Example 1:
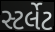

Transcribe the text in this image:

સ્ટર્લેટ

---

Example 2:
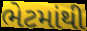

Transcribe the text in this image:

ભેટમાંથી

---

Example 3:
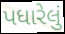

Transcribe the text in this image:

પધારેલું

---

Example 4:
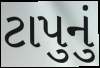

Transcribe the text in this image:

ટાપુનું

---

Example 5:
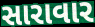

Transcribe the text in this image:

સારાવાર